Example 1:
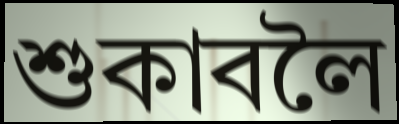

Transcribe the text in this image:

শুকাবলৈ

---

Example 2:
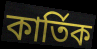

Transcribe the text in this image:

কাৰ্তিক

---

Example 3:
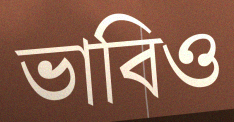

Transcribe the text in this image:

ভাবিও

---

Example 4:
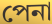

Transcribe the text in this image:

পেনা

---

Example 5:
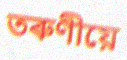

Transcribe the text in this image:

তৰুণীয়ে